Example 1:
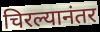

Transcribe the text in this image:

चिरल्यानंतर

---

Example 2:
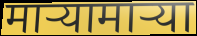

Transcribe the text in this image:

माऱ्यामाऱ्या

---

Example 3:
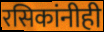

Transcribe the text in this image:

रसिकांनीही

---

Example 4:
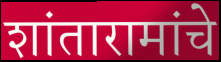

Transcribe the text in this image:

शांतारामांचे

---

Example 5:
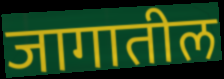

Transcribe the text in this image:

जागातील